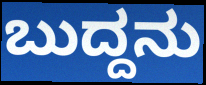
ಬುದ್ದನು